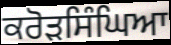
ਕਰੋੜਸਿੰਘਿਆ